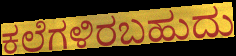
ಕಲೆಗಳಿರಬಹುದು